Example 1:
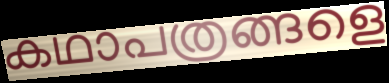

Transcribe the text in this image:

കഥാപത്രങ്ങളെ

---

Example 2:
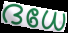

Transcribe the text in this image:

ദധേ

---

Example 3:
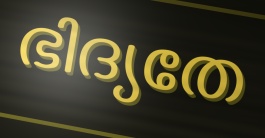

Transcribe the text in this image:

ഭിദ്യതേ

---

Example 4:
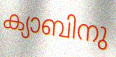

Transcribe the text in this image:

ക്യാബിനു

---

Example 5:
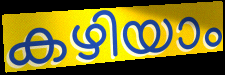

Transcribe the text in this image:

കഴിയാം